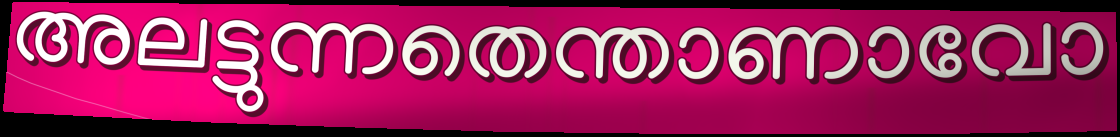
അലട്ടുന്നതെന്താണാവോ